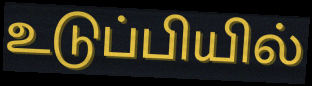
உடுப்பியில்